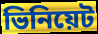
ভিনিয়েট